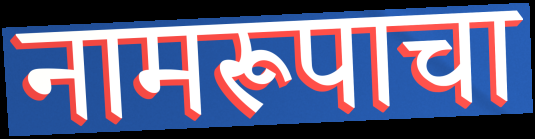
नामरूपाचा